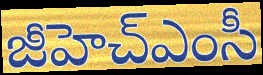
జీహెచ్ఎంసీ